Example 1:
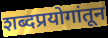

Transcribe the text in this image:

शब्दप्रयोगांतून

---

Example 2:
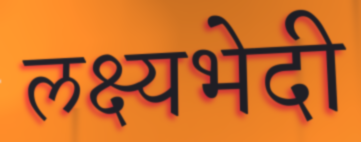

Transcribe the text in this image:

लक्ष्यभेदी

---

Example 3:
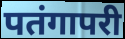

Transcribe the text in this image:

पतंगापरी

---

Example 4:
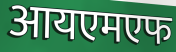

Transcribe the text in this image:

आयएमएफ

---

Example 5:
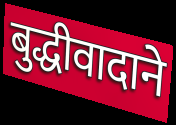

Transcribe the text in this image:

बुद्धीवादाने